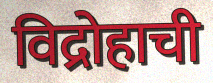
विद्रोहाची